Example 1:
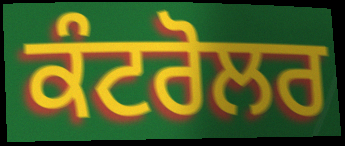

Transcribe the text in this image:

ਕੰਟਰੋਲਰ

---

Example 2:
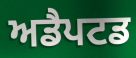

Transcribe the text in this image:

ਅਡੈਪਟਡ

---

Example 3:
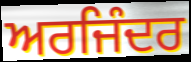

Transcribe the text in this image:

ਅਰਜਿੰਦਰ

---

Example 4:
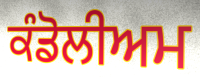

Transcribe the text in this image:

ਕੰਡੋਲੀਅਮ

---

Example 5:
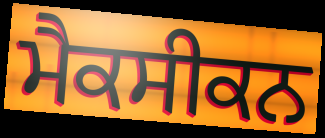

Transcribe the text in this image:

ਮੈਕਸੀਕਨ